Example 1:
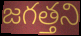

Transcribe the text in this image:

జగత్తని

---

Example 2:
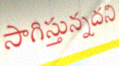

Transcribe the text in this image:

సాగిస్తున్నదని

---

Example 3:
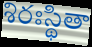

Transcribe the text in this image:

శిరఃస్థితా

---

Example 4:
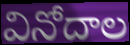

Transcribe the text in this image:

వినోదాల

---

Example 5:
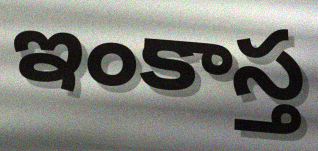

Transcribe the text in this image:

ఇంకాస్త